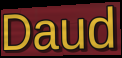
Daud